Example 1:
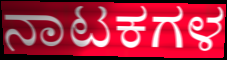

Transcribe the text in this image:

ನಾಟಕಗಳ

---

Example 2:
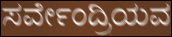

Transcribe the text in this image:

ಸರ್ವೇಂದ್ರಿಯವ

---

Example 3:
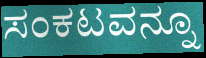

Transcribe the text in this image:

ಸಂಕಟವನ್ನೂ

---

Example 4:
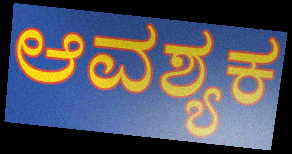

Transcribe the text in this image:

ಆವಶ್ಯಕ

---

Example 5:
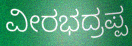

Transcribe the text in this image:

ವೀರಭದ್ರಪ್ಪ